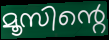
മൂസിന്റെ